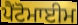
ਪੈਂਟੋਮਾਈਮ